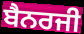
ਬੈਨਰਜੀ